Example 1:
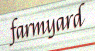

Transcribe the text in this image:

farmyard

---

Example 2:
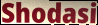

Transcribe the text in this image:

Shodasi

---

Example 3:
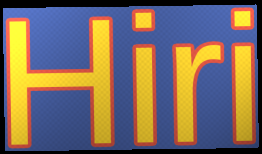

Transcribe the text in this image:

Hiri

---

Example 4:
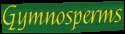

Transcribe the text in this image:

Gymnosperms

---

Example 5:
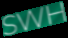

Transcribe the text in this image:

SWH